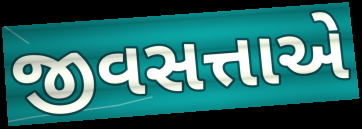
જીવસત્તાએ